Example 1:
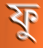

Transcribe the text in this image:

ফু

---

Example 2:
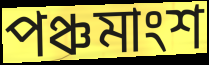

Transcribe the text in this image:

পঞ্চমাংশ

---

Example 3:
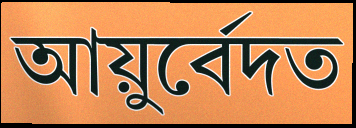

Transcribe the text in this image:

আয়ুৰ্বেদত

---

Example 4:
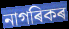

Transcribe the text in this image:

নাগৰিকৰ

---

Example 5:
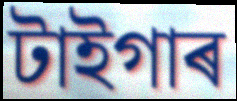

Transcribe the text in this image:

টাইগাৰ